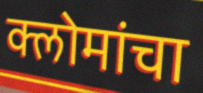
क्लोमांचा